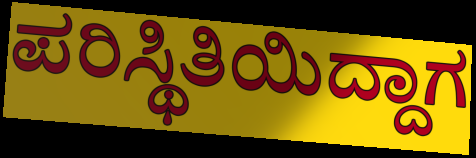
ಪರಿಸ್ಥಿತಿಯಿದ್ದಾಗ